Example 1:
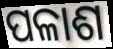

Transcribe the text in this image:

ପଳାଶ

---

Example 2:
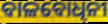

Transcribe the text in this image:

ବାଳବୋଧିନୀ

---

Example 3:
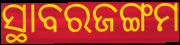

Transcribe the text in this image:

ସ୍ଥାବରଜଙ୍ଗମ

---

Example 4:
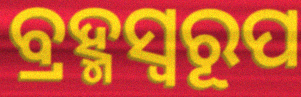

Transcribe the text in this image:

ବ୍ରହ୍ମସ୍ୱରୂପ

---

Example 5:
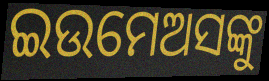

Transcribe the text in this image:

ଇଉମେଅସଙ୍କୁ